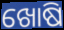
ଖୋଷି